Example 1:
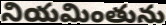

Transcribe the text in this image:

నియమింతును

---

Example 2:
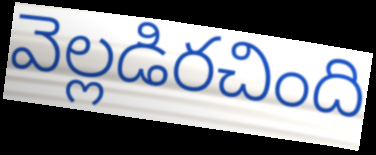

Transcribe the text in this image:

వెల్లడిరచింది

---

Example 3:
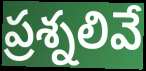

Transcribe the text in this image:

ప్రశ్నలివే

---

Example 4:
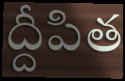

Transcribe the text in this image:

ద్దీపిత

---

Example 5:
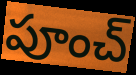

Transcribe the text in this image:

పూంచ్